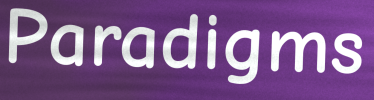
Paradigms